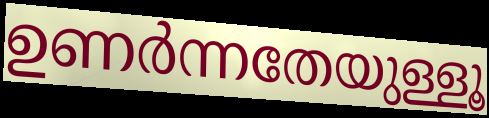
ഉണർന്നതേയുള്ളൂ